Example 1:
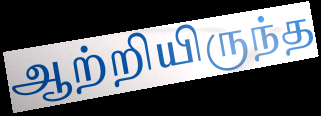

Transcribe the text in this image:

ஆற்றியிருந்த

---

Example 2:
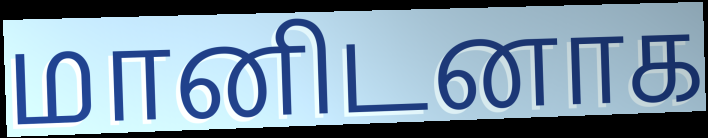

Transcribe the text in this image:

மானிடனாக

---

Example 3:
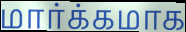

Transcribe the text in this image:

மார்க்கமாக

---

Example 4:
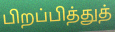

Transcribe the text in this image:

பிறப்பித்துத்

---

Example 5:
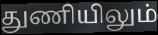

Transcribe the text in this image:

துணியிலும்